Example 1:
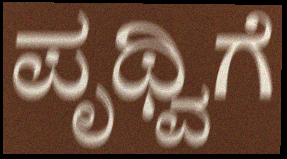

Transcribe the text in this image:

ಪೃಥ್ವಿಗೆ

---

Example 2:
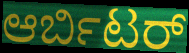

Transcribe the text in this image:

ಆರ್ಬಿಟರ್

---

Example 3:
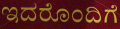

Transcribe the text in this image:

ಇದರೊಂದಿಗೆ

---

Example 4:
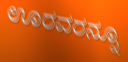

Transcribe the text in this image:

ಊರವರನ್ನೂ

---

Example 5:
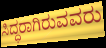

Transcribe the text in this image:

ಸಿದ್ಧರಾಗಿರುವವರು